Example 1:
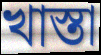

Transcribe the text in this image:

খাস্তা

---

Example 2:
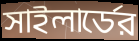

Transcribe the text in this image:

সাইলার্ডের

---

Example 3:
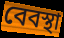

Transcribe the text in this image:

বেবস্থা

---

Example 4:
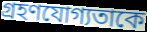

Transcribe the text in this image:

গ্রহণযোগ্যতাকে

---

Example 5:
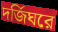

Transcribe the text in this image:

দর্জিঘরে